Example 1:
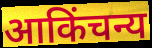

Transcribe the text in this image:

आकिंचन्य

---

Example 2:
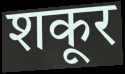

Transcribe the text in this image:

शकूर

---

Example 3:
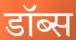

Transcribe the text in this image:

डॉब्स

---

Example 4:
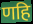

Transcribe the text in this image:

णहि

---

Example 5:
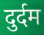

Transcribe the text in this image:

दुर्दम